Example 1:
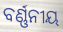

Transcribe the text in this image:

ବର୍ଣ୍ଣନୀୟ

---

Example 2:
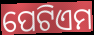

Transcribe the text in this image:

ପେଟିଏମ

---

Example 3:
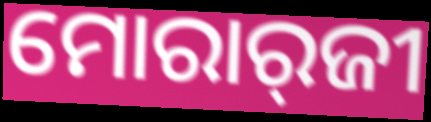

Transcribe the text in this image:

ମୋରାର୍‌ଜୀ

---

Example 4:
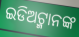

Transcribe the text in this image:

ଇଡିଅଟ୍ମାନଙ୍କ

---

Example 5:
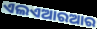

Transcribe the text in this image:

ଏଲଏଆରଆର